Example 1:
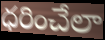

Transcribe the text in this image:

ధరించేలా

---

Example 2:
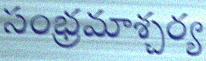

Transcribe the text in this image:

సంభ్రమాశ్చర్య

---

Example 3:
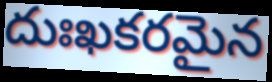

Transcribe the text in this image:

దుఃఖకరమైన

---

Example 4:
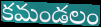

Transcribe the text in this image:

కమండలం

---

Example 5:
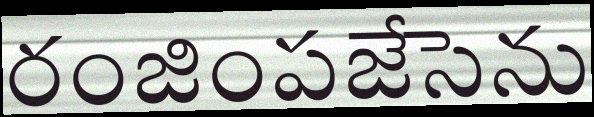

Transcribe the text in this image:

రంజింపజేసెను